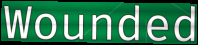
Wounded